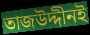
তাজউদ্দীনই